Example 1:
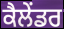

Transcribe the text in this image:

ਕੈਲੇਂਡਰ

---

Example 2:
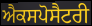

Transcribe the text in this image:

ਐਕਸਪੋਸੈਟਰੀ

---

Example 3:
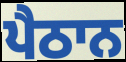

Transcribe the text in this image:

ਪੈਠਾਨ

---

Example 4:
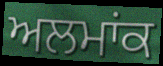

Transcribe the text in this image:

ਅਲਮਾਂਕ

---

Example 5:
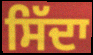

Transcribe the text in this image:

ਸਿੱਦਾ